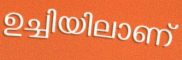
ഉച്ചിയിലാണ്